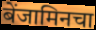
बेंजामिनचा